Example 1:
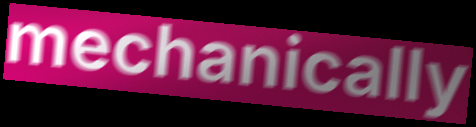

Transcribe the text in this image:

mechanically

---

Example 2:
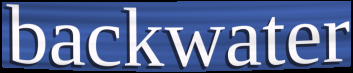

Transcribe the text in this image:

backwater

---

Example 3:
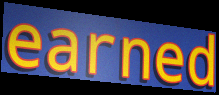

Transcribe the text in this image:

earned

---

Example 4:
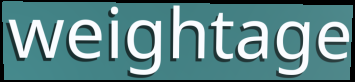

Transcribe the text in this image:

weightage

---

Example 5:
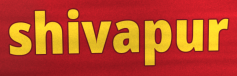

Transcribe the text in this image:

shivapur